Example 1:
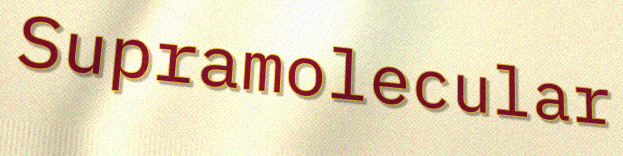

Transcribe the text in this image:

Supramolecular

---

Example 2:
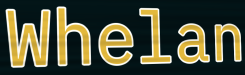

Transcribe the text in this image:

Whelan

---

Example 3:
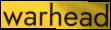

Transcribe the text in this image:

warhead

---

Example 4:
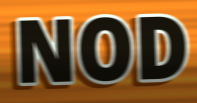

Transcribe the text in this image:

NOD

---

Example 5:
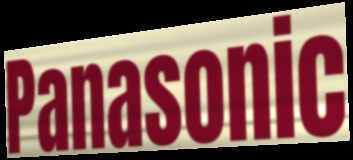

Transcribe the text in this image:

Panasonic